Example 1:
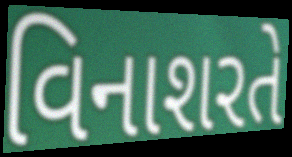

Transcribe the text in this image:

વિનાશરતે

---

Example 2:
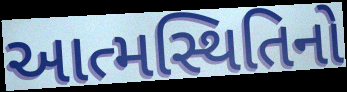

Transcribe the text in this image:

આત્મસ્થિતિનો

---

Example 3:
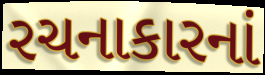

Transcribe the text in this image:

રચનાકારનાં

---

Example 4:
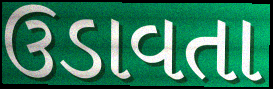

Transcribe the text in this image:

ઉડાવતા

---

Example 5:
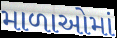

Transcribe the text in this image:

માળાઓમાં